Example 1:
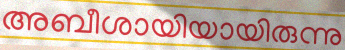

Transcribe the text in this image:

അബീശായിയായിരുന്നു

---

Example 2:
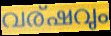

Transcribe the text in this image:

വര്ഷവും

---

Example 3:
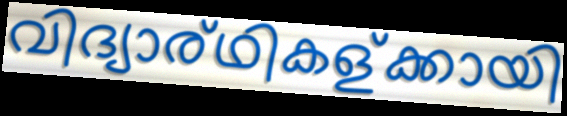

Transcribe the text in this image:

വിദ്യാര്ഥികള്ക്കായി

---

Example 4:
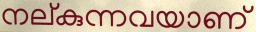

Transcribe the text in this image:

നല്കുന്നവയാണ്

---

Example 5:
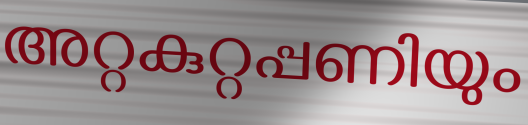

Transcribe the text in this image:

അറ്റകുറ്റപ്പണിയും